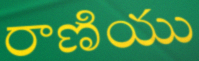
రాణియు